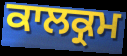
ਕਾਲਕ੍ਰਮ